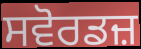
ਸਵੋਰਡਜ਼